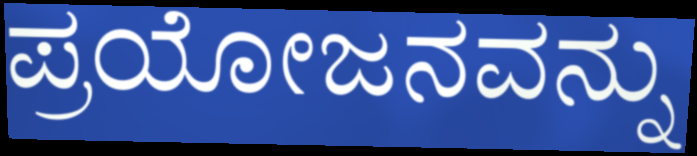
ಪ್ರಯೋಜನವನ್ನು